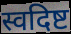
स्वदिष्ट